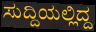
ಸುದ್ದಿಯಲ್ಲಿದ್ದ